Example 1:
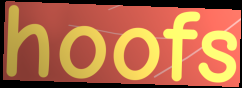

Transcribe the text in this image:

hoofs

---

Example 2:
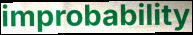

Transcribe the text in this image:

improbability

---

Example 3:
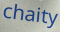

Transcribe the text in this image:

chaity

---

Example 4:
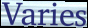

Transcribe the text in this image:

Varies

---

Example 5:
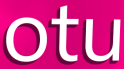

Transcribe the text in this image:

otu